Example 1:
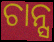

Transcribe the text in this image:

ଚାନ୍ସ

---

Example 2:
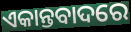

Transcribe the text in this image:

ଏକାନ୍ତବାଦରେ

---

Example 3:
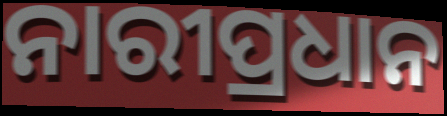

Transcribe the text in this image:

ନାରୀପ୍ରଧାନ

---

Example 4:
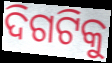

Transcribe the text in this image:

ଦିଗଟିକୁ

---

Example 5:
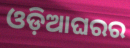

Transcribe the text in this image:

ଓଡ଼ିଆଘରର